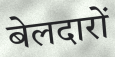
बेलदारों